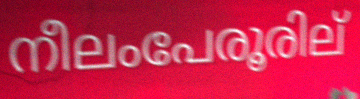
നീലംപേരൂരില്